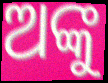
ଅଙ୍କୁ